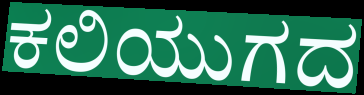
ಕಲಿಯುಗದ